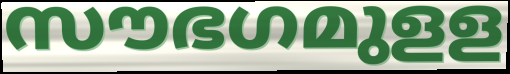
സൗഭഗമുളള